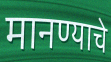
मानण्याचे